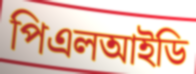
পিএলআইডি